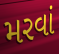
મરવાં